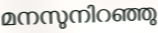
മനസുനിറഞ്ഞു